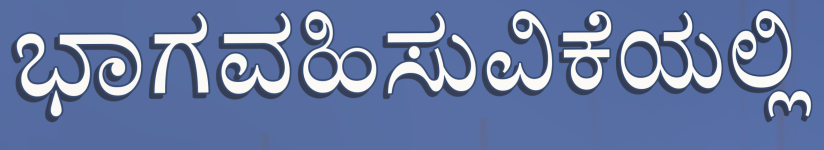
ಭಾಗವಹಿಸುವಿಕೆಯಲ್ಲಿ